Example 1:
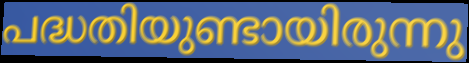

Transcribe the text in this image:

പദ്ധതിയുണ്ടായിരുന്നു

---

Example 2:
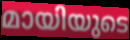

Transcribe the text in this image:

മായിയുടെ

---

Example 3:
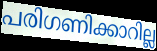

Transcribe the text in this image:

പരിഗണിക്കാറില്ല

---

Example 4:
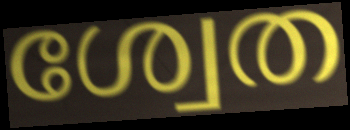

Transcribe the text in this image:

ശ്വേത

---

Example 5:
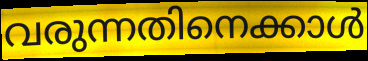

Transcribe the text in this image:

വരുന്നതിനെക്കാൾ